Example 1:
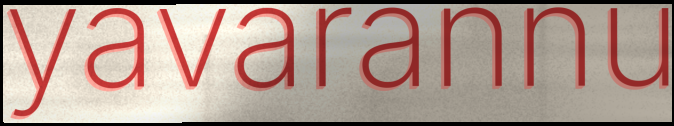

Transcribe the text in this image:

yavarannu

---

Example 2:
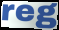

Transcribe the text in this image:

reg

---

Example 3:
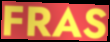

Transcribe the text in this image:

FRAS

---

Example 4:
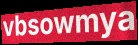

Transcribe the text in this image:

vbsowmya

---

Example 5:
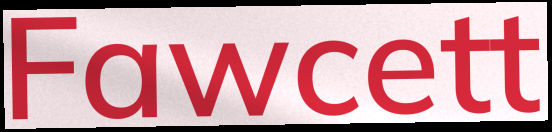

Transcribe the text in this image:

Fawcett